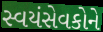
સ્વયંસેવકોને